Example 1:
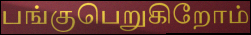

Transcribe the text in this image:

பங்குபெறுகிறோம்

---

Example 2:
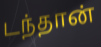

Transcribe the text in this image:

டந்தான்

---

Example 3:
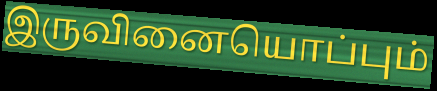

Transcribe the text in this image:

இருவினையொப்பும்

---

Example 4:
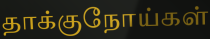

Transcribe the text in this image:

தாக்குநோய்கள்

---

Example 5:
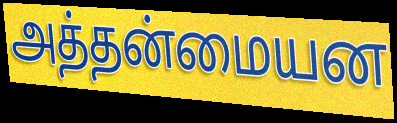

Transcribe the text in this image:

அத்தன்மையன